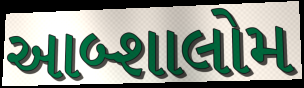
આબ્શાલોમ